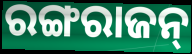
ରଙ୍ଗରାଜନ୍